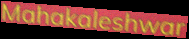
Mahakaleshwar